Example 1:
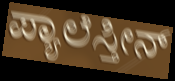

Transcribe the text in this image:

ಪ್ಯಾಲೆಸ್ತೀನ್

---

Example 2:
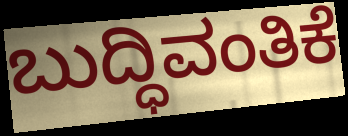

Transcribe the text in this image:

ಬುದ್ಧಿವಂತಿಕೆ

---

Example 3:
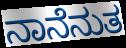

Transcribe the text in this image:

ನಾನೆನುತ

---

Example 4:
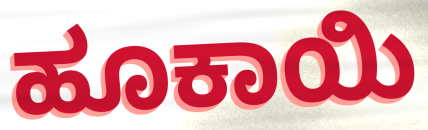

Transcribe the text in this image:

ಹೂಕಾಯಿ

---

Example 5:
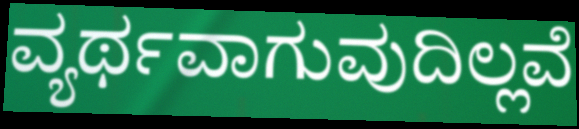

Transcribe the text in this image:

ವ್ಯರ್ಥವಾಗುವುದಿಲ್ಲವೆ